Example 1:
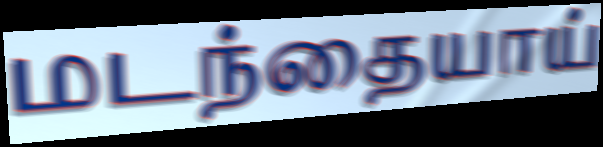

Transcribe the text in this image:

மடந்தையாய்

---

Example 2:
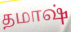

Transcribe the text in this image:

தமாஷ்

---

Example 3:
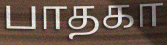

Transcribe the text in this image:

பாதகா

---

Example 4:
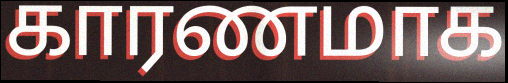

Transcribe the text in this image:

காரணமாக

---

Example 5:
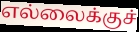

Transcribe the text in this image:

எல்லைக்குச்